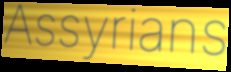
Assyrians